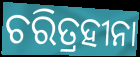
ଚରିତ୍ରହୀନା